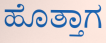
ಹೊತ್ತಾಗ